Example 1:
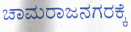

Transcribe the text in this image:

ಚಾಮರಾಜನಗರಕ್ಕೆ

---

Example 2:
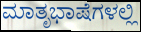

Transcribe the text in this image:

ಮಾತೃಭಾಷೆಗಳಲ್ಲಿ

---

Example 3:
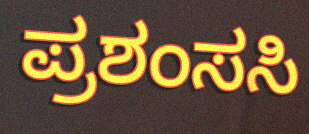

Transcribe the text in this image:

ಪ್ರಶಂಸಸಿ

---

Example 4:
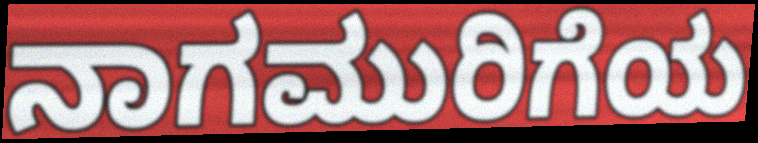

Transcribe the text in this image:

ನಾಗಮುರಿಗೆಯ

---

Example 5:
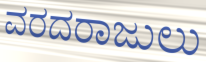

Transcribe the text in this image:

ವರದರಾಜುಲು